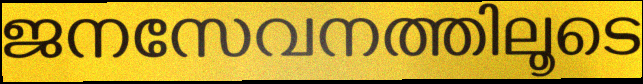
ജനസേവനത്തിലൂടെ